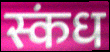
स्कंध